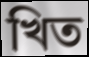
খিত